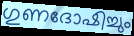
ഗുണദോഷിച്ചും